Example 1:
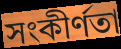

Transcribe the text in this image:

সংকীৰ্ণতা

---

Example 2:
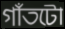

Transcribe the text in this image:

গাঁতটো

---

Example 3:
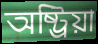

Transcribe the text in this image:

অষ্ট্ৰিয়া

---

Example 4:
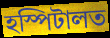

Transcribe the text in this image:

হস্পিটালত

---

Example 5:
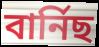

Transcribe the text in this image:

বাৰ্নিছ